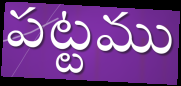
పట్టము